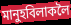
মানুহবিলাকলৈ